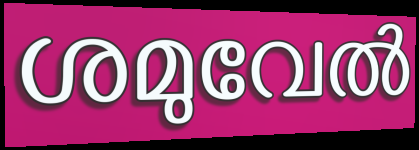
ശമുവേൽ